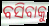
ବସିବାକୁ